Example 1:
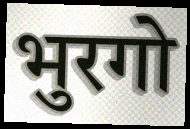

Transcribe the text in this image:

भुरगो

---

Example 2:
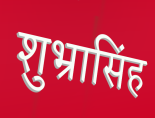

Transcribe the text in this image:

शुभ्रासिंह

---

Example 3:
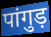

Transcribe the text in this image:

पांगुड़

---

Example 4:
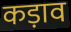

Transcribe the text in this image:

कड़ाव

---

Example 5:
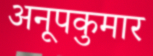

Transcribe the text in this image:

अनूपकुमार